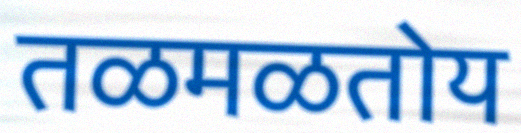
तळमळतोय